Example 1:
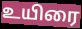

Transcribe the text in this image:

உயிரை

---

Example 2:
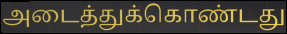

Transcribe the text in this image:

அடைத்துக்கொண்டது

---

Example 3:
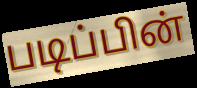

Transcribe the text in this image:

படிப்பின்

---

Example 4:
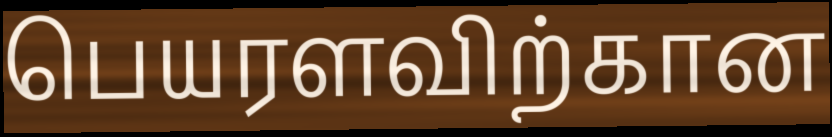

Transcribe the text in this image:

பெயரளவிற்கான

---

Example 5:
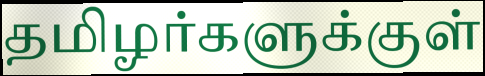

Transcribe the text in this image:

தமிழர்களுக்குள்